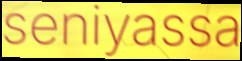
seniyassa